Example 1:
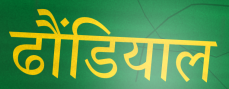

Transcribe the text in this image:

ढौंडियाल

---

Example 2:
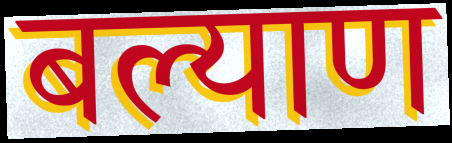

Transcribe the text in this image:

बल्याण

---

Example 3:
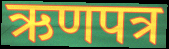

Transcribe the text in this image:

ऋणपत्र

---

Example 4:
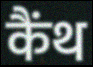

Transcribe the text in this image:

कैंथ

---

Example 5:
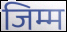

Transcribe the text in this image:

जिम्म